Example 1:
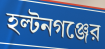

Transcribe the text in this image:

হল্টনগঞ্জের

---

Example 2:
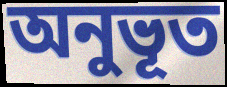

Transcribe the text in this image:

অনুভূত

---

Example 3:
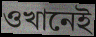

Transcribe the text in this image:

ওখানেই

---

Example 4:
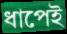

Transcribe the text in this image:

ধাপেই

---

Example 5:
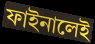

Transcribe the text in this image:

ফাইনালেই